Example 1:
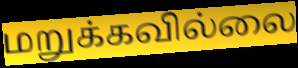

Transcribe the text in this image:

மறுக்கவில்லை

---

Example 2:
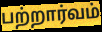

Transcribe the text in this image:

பற்றார்வம்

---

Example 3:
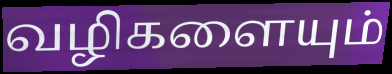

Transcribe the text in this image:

வழிகளையும்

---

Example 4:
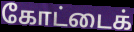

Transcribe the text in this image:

கோட்டைக்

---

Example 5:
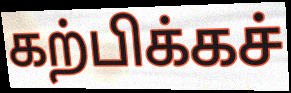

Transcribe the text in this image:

கற்பிக்கச்